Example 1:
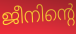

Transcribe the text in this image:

ജീനിന്റെ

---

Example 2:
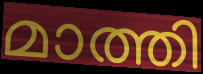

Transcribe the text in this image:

മാത്തി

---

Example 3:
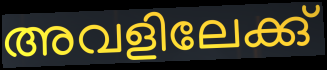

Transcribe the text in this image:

അവളിലേക്കു്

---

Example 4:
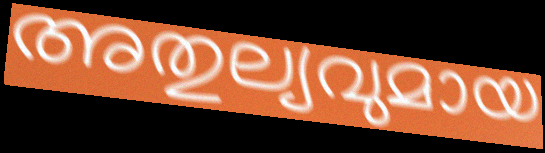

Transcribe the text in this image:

അതുല്യവുമായ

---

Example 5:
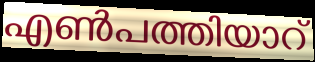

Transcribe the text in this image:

എൺപത്തിയാറ്